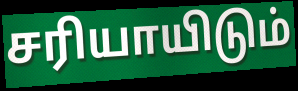
சரியாயிடும்